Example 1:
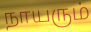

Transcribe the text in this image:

நாயரும்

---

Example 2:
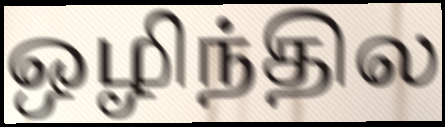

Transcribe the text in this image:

ஒழிந்தில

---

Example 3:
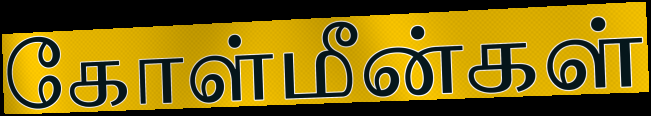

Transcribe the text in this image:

கோள்மீன்கள்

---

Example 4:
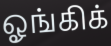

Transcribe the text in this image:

ஓங்கிக்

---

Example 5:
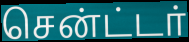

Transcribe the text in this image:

சென்ட்டர்